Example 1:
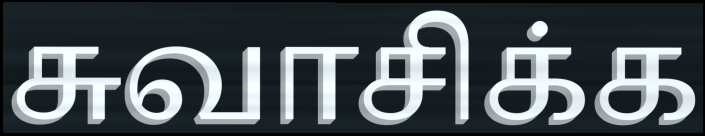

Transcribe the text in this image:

சுவாசிக்க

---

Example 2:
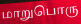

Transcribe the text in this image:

மாறுபொரு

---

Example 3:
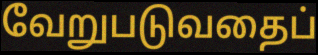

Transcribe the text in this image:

வேறுபடுவதைப்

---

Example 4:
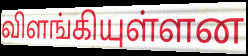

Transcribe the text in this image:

விளங்கியுள்ளன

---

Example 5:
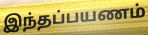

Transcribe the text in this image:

இந்தப்பயணம்